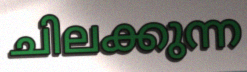
ചിലക്കുന്ന